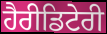
ਹੈਰੀਡਿਟੇਰੀ